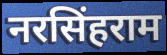
नरसिंहराम